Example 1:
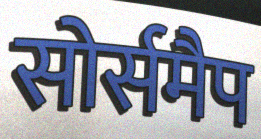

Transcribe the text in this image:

सोर्समैप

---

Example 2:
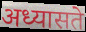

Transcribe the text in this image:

अध्यासते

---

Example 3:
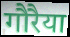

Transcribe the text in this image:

गौरैया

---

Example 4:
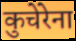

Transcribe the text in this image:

कुचेरेना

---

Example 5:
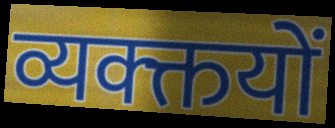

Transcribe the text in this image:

व्यक्क्तयों